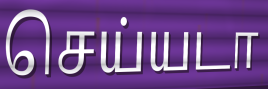
செய்யடா